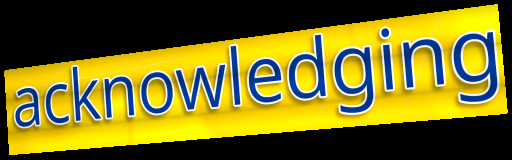
acknowledging